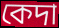
কেদা